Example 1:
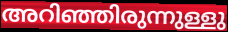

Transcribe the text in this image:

അറിഞ്ഞിരുന്നുള്ളു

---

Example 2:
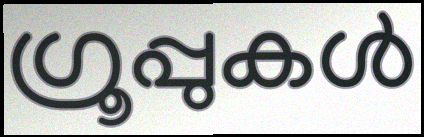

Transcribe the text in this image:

ഗ്രൂപ്പുകൾ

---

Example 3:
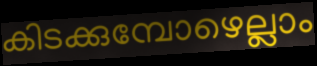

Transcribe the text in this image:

കിടക്കുമ്പോഴെല്ലാം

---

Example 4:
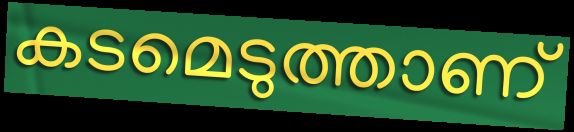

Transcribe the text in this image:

കടമെടുത്താണ്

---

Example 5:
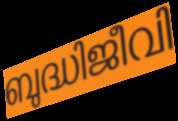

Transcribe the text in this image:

ബുദ്ധിജീവി